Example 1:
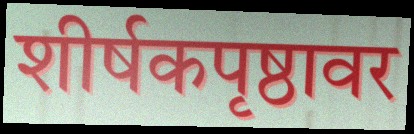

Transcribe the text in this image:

शीर्षकपृष्ठावर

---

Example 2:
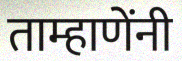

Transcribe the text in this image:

ताम्हाणेंनी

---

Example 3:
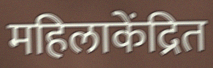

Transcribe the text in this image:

महिलाकेंद्रित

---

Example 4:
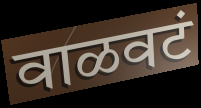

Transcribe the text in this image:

वाळवटं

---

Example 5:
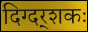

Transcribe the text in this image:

दिग्दर्शकः